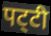
पट्‌टी